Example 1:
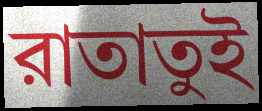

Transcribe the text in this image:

রাতাতুই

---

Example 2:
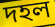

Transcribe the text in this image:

দহল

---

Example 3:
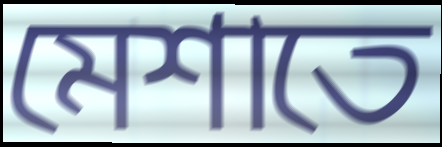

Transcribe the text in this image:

মেশাতে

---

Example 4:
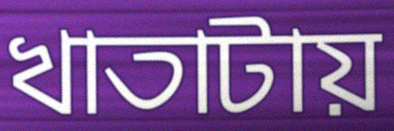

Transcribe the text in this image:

খাতাটায়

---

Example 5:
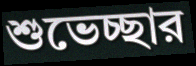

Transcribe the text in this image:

শুভেচ্ছার